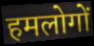
हमलोगों